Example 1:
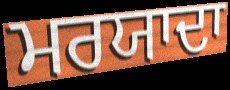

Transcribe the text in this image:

ਮਰਯਾਦਾ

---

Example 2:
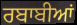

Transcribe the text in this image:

ਰਬਾਬੀਆਂ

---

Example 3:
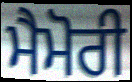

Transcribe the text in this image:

ਮੈਮੋਰੀ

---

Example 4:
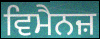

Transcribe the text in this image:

ਵਿਮੈਨਜ਼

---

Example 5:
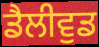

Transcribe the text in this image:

ਡੈਲੀਵੁਡ